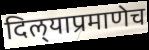
दिल्याप्रमाणेच